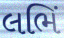
લભિં